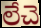
లేచె